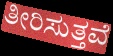
ತೀರಿಸುತ್ತವೆ